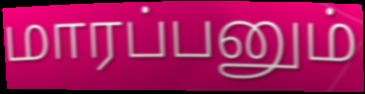
மாரப்பனும்